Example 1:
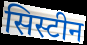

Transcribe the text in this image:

सिस्टीन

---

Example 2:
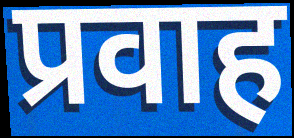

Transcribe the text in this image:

प्रवाह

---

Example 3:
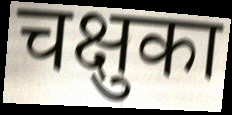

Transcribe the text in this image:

चक्षुका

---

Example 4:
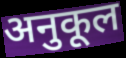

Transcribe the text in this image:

अनुकूल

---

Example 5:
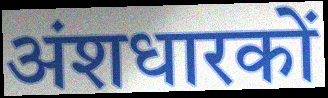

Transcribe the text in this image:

अंशधारकों